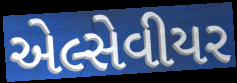
એલ્સેવીયર